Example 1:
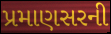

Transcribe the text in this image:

પ્રમાણસરની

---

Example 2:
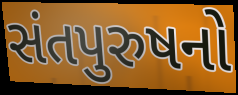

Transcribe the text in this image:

સંતપુરુષનો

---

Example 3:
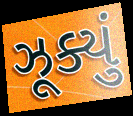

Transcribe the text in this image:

ઝૂક્યું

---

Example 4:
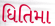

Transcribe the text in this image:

ધિતિમા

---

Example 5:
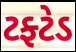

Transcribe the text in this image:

ટફ્ટેડ